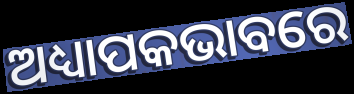
ଅଧ୍ୟାପକଭାବରେ